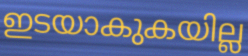
ഇടയാകുകയില്ല